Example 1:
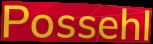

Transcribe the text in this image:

Possehl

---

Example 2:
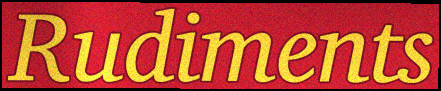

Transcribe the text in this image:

Rudiments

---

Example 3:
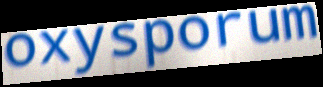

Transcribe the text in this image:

oxysporum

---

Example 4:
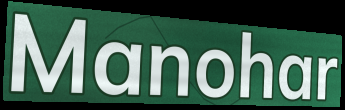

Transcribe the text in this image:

Manohar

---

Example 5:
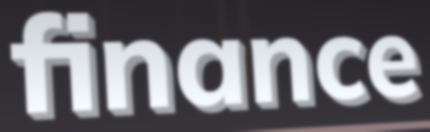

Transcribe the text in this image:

finance